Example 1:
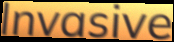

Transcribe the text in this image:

Invasive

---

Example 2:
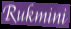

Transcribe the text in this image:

Rukmini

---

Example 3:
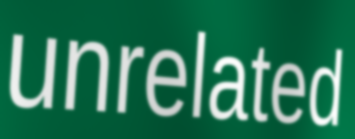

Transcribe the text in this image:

unrelated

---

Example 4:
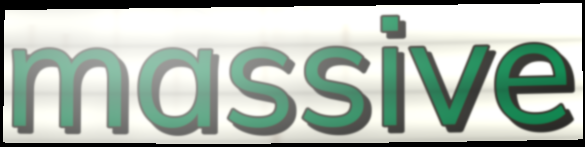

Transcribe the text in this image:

massive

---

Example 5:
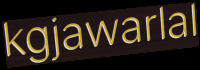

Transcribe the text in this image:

kgjawarlal